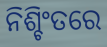
ନିଶ୍ଚିଂତରେ